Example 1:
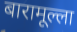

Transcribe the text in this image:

बारामूल्ला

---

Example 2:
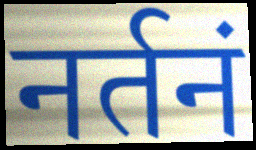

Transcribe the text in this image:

नर्तनं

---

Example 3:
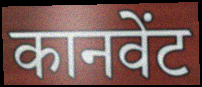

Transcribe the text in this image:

कानवेंट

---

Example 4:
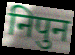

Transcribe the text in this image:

निपुन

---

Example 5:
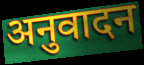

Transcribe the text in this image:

अनुवादन